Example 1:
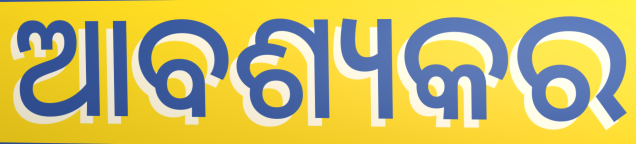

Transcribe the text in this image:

ଆବଶ୍ୟକର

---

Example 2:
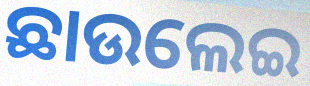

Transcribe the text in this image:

ଛାଉଲେଇ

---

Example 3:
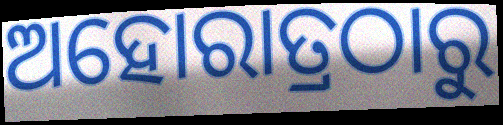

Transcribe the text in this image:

ଅହୋରାତ୍ରଠାରୁ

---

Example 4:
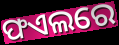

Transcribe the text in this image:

ଫଏଲରେ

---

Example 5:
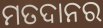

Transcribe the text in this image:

ମତଦାନର